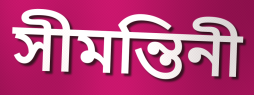
সীমন্তিনী